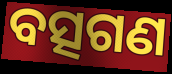
ବତ୍ସଗଣ